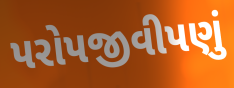
પરોપજીવીપણું